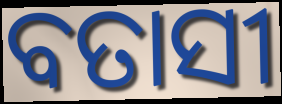
ବତାସୀ